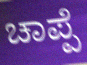
ಚಾಪ್ಪೆ